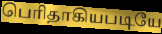
பெரிதாகியபடியே